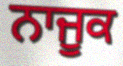
ਨਾਜੂਕ